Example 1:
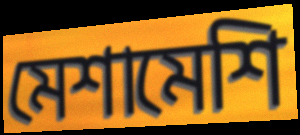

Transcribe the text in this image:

মেশামেশি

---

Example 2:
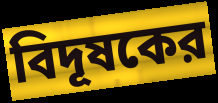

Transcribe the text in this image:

বিদূষকের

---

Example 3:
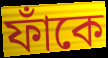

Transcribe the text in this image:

ফাঁকে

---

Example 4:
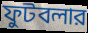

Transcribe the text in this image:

ফুটবলার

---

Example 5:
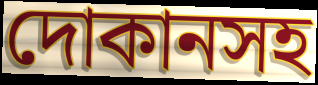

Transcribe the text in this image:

দোকানসহ